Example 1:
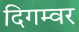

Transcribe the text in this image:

दिगम्वर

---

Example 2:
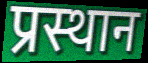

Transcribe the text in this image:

प्रस्थान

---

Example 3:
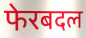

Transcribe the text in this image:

फेरबदल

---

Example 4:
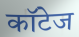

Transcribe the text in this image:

कॉटेज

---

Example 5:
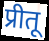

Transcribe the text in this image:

प्रीतू